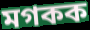
মগকক